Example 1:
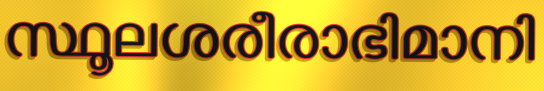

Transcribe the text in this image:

സ്ഥൂലശരീരാഭിമാനി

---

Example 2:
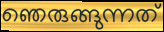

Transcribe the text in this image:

ഞെരുങ്ങുന്നത്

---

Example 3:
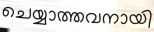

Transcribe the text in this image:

ചെയ്യാത്തവനായി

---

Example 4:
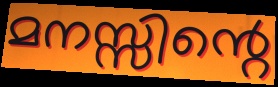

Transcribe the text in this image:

മനസ്സിന്റെ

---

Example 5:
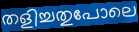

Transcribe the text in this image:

തളിച്ചതുപോലെ